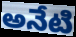
అనేటి